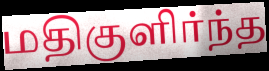
மதிகுளிர்ந்த